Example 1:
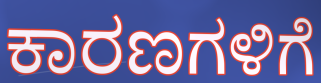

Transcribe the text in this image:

ಕಾರಣಗಳಿಗೆ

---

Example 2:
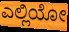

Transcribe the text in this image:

ಎಲ್ಲಿಯೋ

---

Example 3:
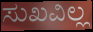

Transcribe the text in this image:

ಸುಖವಿಲ್ಲ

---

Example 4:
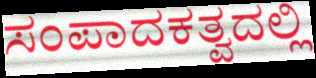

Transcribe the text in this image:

ಸಂಪಾದಕತ್ವದಲ್ಲಿ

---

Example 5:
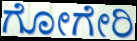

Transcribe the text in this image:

ಗೋಗೇರಿ